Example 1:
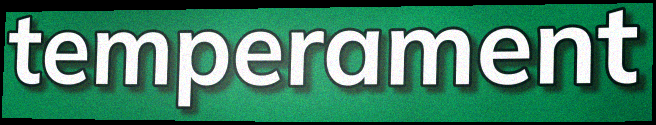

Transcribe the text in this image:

temperament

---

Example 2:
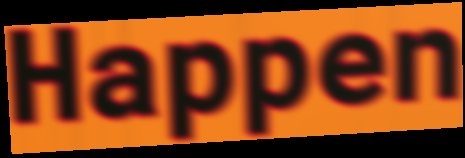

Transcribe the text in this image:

Happen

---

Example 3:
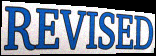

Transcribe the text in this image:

REVISED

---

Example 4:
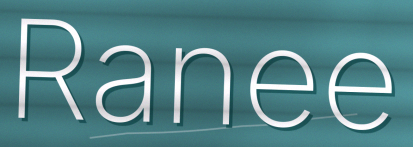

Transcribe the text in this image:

Ranee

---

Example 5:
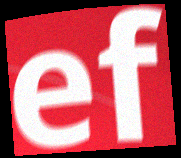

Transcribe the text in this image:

ef